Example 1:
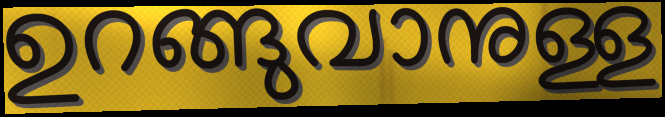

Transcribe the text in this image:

ഉറങ്ങുവാനുള്ള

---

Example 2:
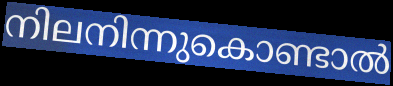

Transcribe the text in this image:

നിലനിന്നുകൊണ്ടാൽ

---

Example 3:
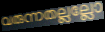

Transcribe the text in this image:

വരുന്നതല്ലല്ലോ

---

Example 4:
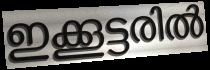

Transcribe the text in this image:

ഇക്കൂട്ടരിൽ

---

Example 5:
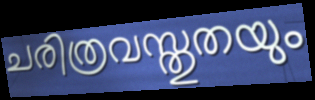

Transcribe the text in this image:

ചരിത്രവസ്തുതയും